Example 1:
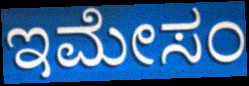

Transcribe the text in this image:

ಇಮೇಸಂ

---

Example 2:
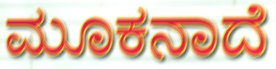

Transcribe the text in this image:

ಮೂಕನಾದೆ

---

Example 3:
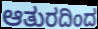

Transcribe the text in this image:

ಆತುರದಿಂದ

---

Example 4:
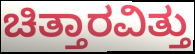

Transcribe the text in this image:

ಚಿತ್ತಾರವಿತ್ತು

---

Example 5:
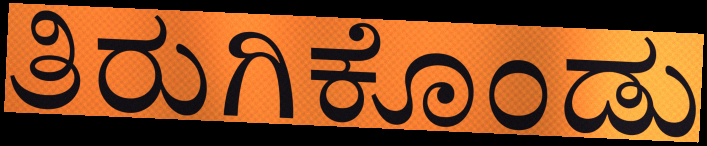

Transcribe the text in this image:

ತಿರುಗಿಕೊಂಡು